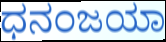
ಧನಂಜಯಾ